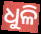
ଧୁଳି